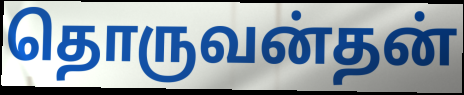
தொருவன்தன்